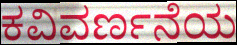
ಕವಿವರ್ಣನೆಯ